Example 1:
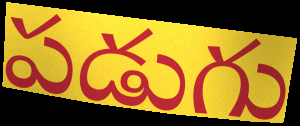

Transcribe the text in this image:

పడుగు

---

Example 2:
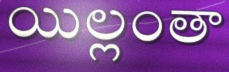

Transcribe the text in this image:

యిల్లంతా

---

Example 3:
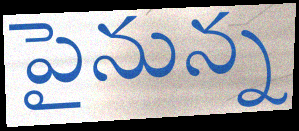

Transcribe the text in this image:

పైనున్న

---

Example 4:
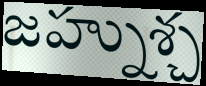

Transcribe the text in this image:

జహ్నుశ్చ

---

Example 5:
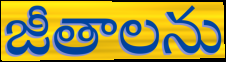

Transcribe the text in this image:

జీతాలను